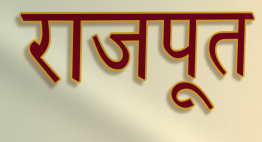
राजपूत